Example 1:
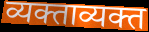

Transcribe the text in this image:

व्यक्ताव्यक्त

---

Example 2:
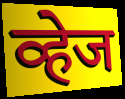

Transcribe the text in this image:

व्हेज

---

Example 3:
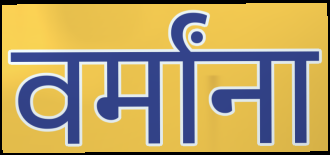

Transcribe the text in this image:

वर्मांना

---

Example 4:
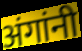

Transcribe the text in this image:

अंगांनी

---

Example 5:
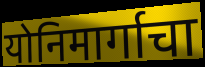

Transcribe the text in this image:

योनिमार्गाचा